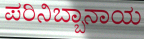
ಪರಿನಿಬ್ಬಾನಾಯ